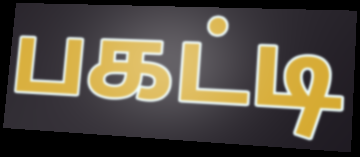
பகட்டி